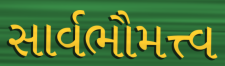
સાર્વભૌમત્ત્વ